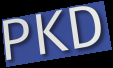
PKD